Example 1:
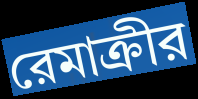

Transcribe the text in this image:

রেমাক্রীর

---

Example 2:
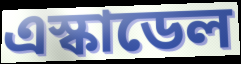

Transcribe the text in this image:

এস্কাডেল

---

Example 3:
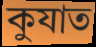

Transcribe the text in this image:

কুযাত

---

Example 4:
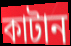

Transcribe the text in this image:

কাটান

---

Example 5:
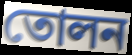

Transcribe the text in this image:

তোলন